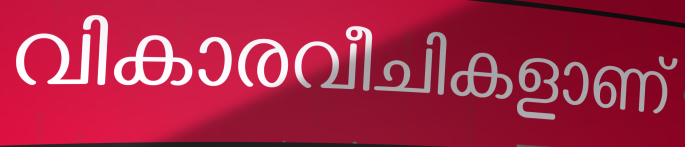
വികാരവീചികളാണ്